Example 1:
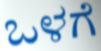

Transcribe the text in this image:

ಒಳಗೆ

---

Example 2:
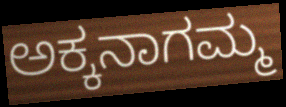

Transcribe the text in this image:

ಅಕ್ಕನಾಗಮ್ಮ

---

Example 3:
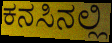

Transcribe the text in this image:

ಕನಸಿನಲ್ಲಿ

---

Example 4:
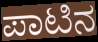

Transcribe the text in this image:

ಪಾಟಿನ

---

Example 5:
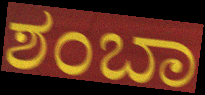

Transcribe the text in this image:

ಶಂಬಾ